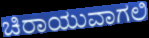
ಚಿರಾಯುವಾಗಲಿ